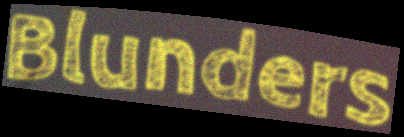
Blunders